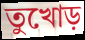
তুখোড়